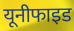
यूनीफाइड